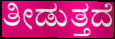
ತೀಡುತ್ತದೆ